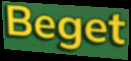
Beget